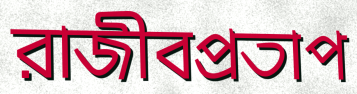
রাজীবপ্রতাপ